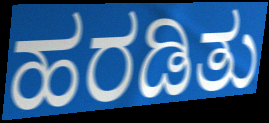
ಹರಡಿತು